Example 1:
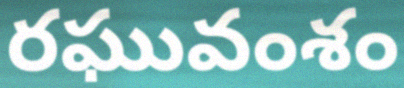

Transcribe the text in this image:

రఘువంశం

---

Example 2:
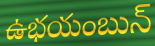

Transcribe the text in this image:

ఉభయంబున్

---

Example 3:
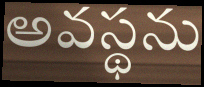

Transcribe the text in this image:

అవస్థను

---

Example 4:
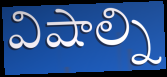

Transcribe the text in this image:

విషాల్ని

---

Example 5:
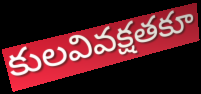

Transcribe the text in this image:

కులవివక్షతకూ